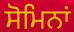
ਸੋਮਿਨਾਂ